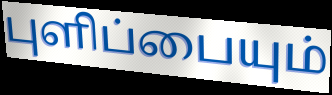
புளிப்பையும்